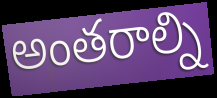
అంతరాల్ని